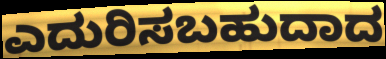
ಎದುರಿಸಬಹುದಾದ